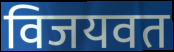
विजयवत